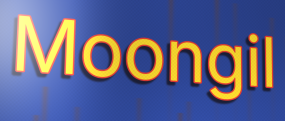
Moongil